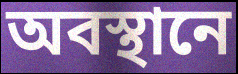
অবস্থানে